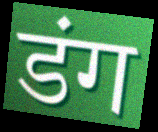
डंग